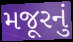
મજૂરનું